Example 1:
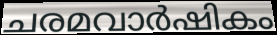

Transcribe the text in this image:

ചരമവാർഷികം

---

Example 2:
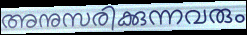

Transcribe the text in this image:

അനുസരിക്കുന്നവരും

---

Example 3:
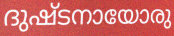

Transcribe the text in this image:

ദുഷ്ടനായോരു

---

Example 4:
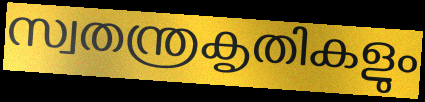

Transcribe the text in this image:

സ്വതന്ത്രകൃതികളും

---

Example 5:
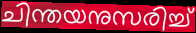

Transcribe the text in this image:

ചിന്തയനുസരിച്ച്